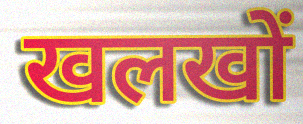
खलखों